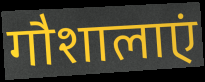
गौशालाएं